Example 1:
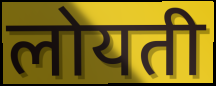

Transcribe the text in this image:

लोयती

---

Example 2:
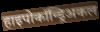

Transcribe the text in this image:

हाइपोकॉन्ड्रिअकल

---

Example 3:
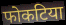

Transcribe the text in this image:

फोकटिया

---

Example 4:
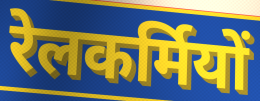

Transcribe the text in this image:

रेलकर्मियों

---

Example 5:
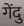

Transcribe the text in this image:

गेंदु